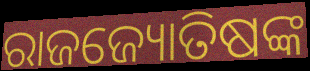
ରାଜଜ୍ୟୋତିଷଙ୍କ